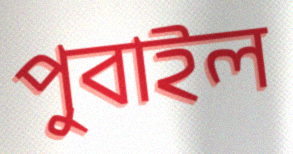
পুবাইল